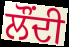
ਲੌਂਦੀ